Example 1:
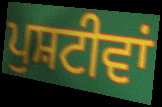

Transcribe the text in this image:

ਪੁਸ਼ਟੀਵਾਂ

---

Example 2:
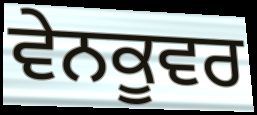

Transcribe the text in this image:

ਵੇਨਕੂਵਰ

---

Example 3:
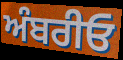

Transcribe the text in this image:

ਅੰਬਰੀਓ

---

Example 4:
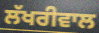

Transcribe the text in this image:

ਲੱਖਰੀਵਾਲ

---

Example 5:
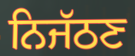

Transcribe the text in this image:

ਨਿਜੱਠਣ